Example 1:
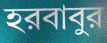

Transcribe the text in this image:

হরবাবুর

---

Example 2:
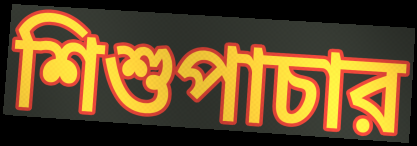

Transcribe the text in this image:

শিশুপাচার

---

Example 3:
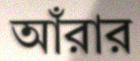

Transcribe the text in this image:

আঁরার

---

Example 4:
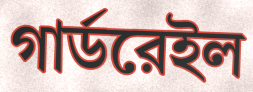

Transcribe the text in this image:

গার্ডরেইল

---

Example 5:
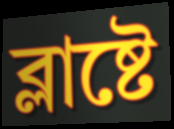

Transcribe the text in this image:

ব্লাষ্টে